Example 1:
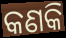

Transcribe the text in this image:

କଣକି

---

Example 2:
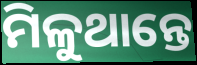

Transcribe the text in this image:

ମିଳୁଥାନ୍ତେ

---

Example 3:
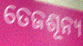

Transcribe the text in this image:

ତେଜଶୂନ୍ୟ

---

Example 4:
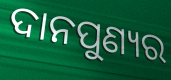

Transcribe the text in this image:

ଦାନପୁଣ୍ୟର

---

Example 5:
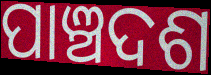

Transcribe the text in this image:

ପାଞ୍ଚଦଶ